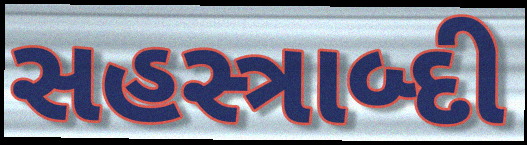
સહસ્ત્રાબ્દી